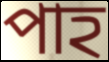
পাহ